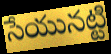
సేయునట్టి